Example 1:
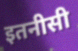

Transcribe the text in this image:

इतनीसी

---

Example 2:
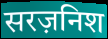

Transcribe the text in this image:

सरज़निश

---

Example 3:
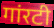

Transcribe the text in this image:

गांरटी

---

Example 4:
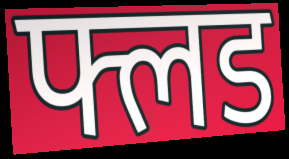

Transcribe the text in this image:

फ्लड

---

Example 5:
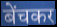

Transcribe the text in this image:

बेंचकर